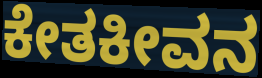
ಕೇತಕೀವನ